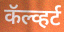
कॅल्व्हर्ट